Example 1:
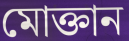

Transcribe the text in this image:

মোক্তান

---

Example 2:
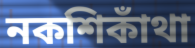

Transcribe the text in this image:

নকশিকাঁথা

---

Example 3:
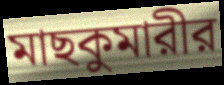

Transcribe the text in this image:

মাছকুমারীর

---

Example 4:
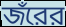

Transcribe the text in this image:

জঁরের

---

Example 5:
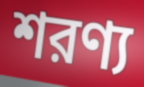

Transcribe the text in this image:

শরণ্য